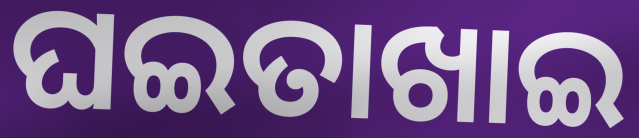
ଘଇତାଖାଇ